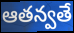
ఆతన్వతే